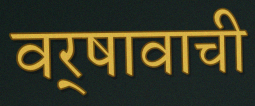
वर्षावाची